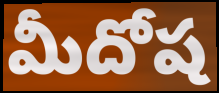
మీదోష